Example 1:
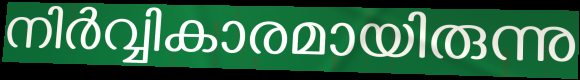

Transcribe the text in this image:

നിർവ്വികാരമായിരുന്നു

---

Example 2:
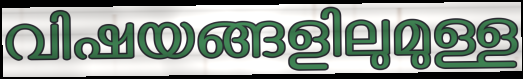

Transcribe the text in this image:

വിഷയങ്ങളിലുമുള്ള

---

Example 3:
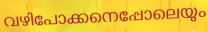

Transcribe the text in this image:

വഴിപോക്കനെപ്പോലെയും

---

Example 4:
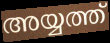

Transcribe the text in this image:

അയ്യത്ത്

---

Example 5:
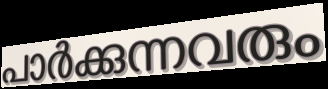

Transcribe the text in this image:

പാർക്കുന്നവരും